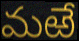
మఱే